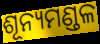
ଶୂନ୍ୟମଣ୍ଡଳ